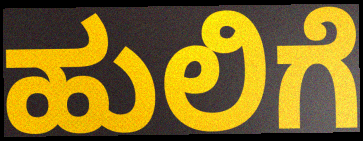
ಹುಲಿಗೆ